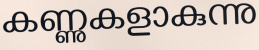
കണ്ണുകളാകുന്നു